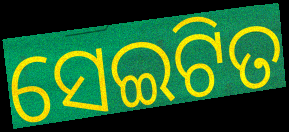
ସେଇଟିତ